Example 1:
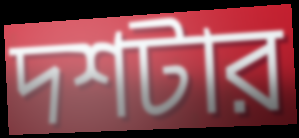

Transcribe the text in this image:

দশটার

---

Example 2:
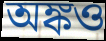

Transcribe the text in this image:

অঙ্কও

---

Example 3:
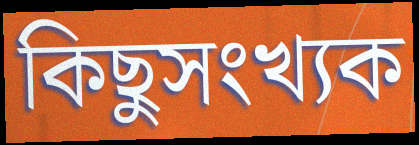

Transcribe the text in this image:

কিছুসংখ্যক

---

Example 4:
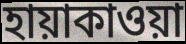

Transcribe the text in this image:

হায়াকাওয়া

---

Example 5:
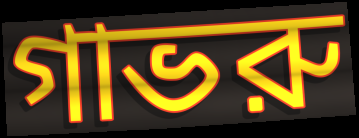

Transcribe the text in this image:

গাভরু